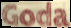
Goda